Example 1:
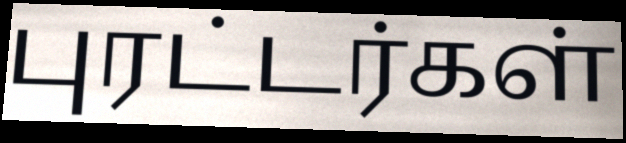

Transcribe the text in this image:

புரட்டர்கள்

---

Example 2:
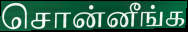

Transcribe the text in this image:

சொன்னீங்க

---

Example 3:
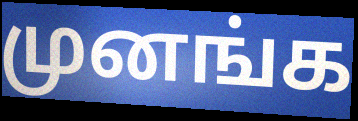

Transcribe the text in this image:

முனங்க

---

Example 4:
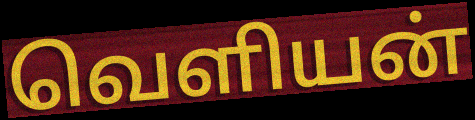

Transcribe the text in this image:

வெளியன்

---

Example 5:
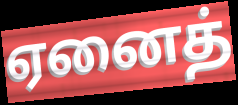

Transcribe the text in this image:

ஏனைத்